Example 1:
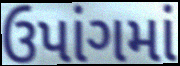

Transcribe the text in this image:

ઉપાંગમાં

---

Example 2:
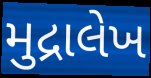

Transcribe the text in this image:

મુદ્રાલેખ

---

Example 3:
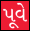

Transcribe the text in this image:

પૂવે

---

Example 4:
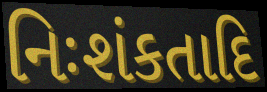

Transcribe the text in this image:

નિઃશંકતાદિ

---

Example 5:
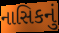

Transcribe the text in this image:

નાસિકનું